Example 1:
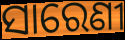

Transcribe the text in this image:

ସାରେଣୀ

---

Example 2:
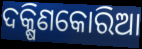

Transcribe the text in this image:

ଦକ୍ଷିଣକୋରିଆ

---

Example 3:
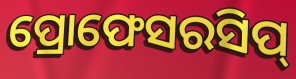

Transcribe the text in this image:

ପ୍ରୋଫେସରସିପ୍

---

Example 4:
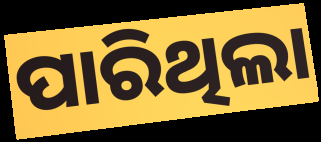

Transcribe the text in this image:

ପାରିଥିଲା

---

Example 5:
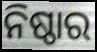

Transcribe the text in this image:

ନିଷ୍ଠାର